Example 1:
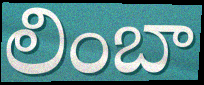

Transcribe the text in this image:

లింబా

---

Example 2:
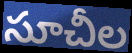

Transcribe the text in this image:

సూచీల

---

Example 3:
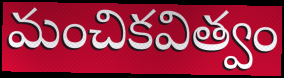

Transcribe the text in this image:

మంచికవిత్వం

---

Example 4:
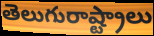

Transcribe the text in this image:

తెలుగురాష్ట్రాలు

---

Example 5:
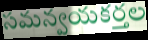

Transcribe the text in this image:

సమన్వయకర్తల